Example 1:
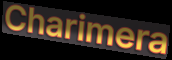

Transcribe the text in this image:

Charimera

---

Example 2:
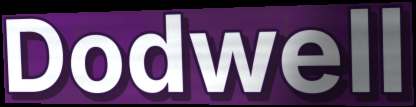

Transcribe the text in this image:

Dodwell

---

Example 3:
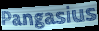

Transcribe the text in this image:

Pangasius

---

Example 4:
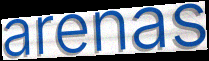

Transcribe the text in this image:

arenas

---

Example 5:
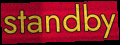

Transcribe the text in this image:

standby